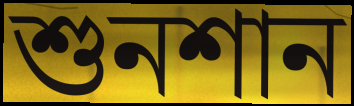
শুনশান